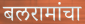
बलरामांचा